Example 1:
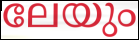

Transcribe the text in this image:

ലേയും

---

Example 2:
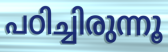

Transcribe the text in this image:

പഠിച്ചിരുന്നൂ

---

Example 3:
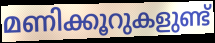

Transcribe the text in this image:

മണിക്കൂറുകളുണ്ട്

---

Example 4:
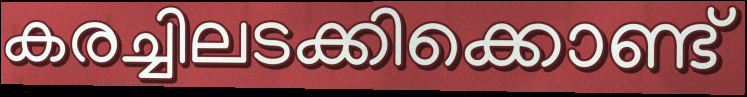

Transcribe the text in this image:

കരച്ചിലടക്കിക്കൊണ്ട്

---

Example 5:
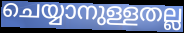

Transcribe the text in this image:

ചെയ്യാനുള്ളതല്ല